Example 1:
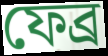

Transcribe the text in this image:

ফেব্র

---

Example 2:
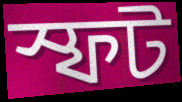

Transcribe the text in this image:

স্ফট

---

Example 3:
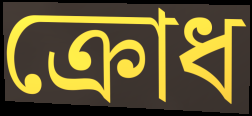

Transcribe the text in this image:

ক্রোধ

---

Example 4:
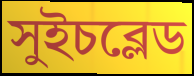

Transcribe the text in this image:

সুইচব্লেড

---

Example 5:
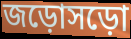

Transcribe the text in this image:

জড়োসড়ো